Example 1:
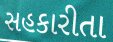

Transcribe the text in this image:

સહકારીતા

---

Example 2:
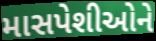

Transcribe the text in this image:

માસપેશીઓને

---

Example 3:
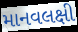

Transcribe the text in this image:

માનવલક્ષી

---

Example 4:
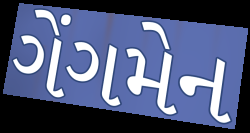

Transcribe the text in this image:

ગેંગમેન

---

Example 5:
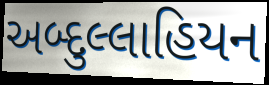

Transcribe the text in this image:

અબ્દુલ્લાહિયન